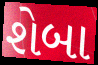
શેબા